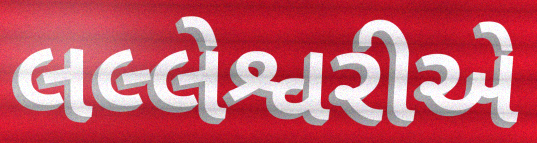
લલ્લેશ્વરીએ